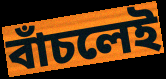
বাঁচলেই